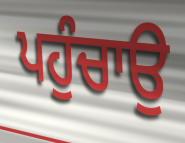
ਪਹੁੰਚਾਉ